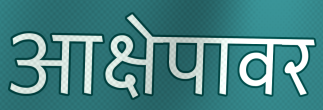
आक्षेपावर